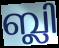
ബ്ലി